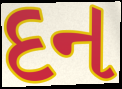
દન